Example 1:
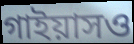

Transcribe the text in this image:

গাইয়াসও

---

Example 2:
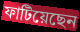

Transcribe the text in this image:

ফাটিয়েছেন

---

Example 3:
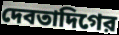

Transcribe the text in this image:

দেবতাদিগের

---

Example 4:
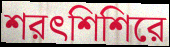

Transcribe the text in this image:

শরৎশিশিরে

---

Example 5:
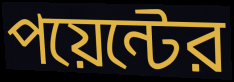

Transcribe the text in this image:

পয়েন্টের